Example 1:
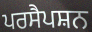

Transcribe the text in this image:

ਪਰਸੈਪਸ਼ਨ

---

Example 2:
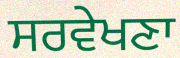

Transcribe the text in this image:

ਸਰਵੇਖਣਾ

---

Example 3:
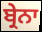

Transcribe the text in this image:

ਬ੍ਰੇਨਾ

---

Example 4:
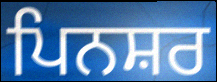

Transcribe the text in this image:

ਪਿਨਸ਼ਰ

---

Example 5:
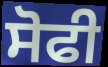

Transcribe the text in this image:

ਸੋਫੀ